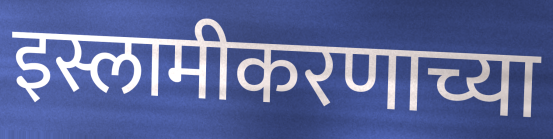
इस्लामीकरणाच्या